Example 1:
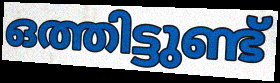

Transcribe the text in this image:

ഒത്തിട്ടുണ്ട്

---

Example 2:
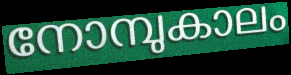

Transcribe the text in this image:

നോമ്പുകാലം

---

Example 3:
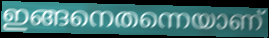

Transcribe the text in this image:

ഇങ്ങനെതന്നെയാണ്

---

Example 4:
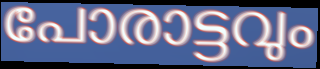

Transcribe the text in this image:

പോരാട്ടവും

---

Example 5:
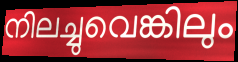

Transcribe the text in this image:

നിലച്ചുവെങ്കിലും